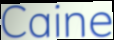
Caine